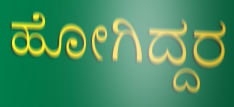
ಹೋಗಿದ್ದರ